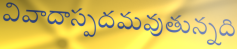
వివాదాస్పదమవుతున్నది